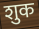
शुक